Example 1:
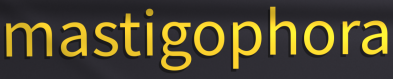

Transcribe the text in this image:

mastigophora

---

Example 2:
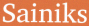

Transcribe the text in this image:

Sainiks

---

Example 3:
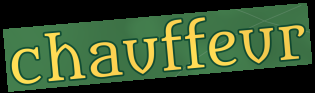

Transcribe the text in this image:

chauffeur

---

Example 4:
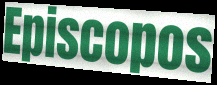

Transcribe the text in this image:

Episcopos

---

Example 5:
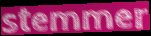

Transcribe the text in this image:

stemmer